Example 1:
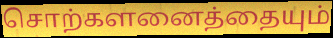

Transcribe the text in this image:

சொற்களனைத்தையும்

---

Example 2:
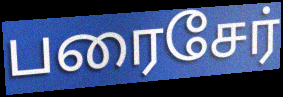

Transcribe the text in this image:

பரைசேர்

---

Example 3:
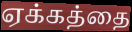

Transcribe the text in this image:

ஏக்கத்தை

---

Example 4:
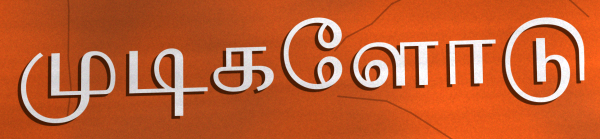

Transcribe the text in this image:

முடிகளோடு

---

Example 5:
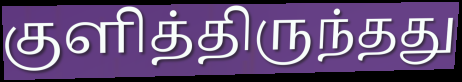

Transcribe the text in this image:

குளித்திருந்தது